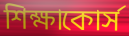
শিক্ষাকোর্স